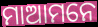
ମାଆମନେ